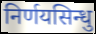
निर्णयसिन्धु